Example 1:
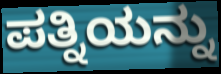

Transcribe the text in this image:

ಪತ್ನಿಯನ್ನು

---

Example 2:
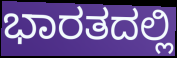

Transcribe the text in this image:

ಭಾರತದಲ್ಲಿ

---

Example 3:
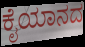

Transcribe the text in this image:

ಕೈಯಾನದ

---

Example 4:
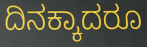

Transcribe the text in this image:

ದಿನಕ್ಕಾದರೂ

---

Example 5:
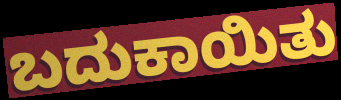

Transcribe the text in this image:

ಬದುಕಾಯಿತು